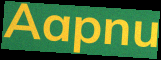
Aapnu